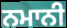
ਨਮਾਨੀ